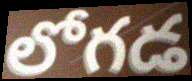
లోగడ